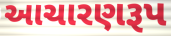
આચારણરૂપ